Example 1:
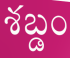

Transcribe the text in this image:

శబ్డం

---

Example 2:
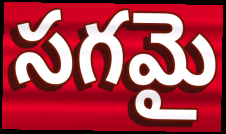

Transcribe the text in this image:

సగమై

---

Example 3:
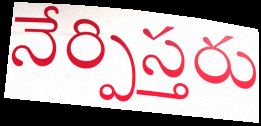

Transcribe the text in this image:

నేర్పిస్తరు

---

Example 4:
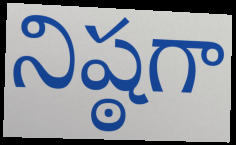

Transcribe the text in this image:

నిష్ఠగా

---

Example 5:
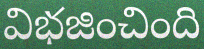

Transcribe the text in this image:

విభజించింది